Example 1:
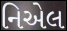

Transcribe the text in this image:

નિએલ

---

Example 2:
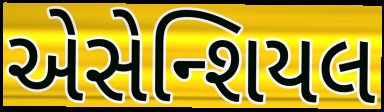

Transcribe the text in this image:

એસેન્શિયલ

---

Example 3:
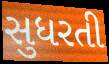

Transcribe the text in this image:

સુધરતી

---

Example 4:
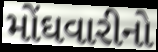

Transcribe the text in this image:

મોંઘવારીનો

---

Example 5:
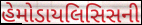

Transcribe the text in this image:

હેમોડાયલિસિસની